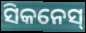
ସିକନେସ୍